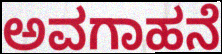
ಅವಗಾಹನೆ